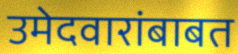
उमेदवारांबाबत